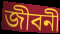
জীবনী